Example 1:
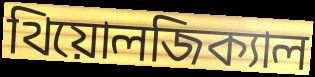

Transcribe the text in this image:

থিয়োলজিক্যাল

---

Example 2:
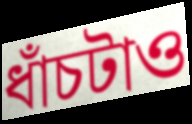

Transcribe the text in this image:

ধাঁচটাও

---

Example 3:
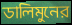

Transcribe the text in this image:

ডালিমুনের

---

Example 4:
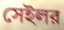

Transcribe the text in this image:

সেইলর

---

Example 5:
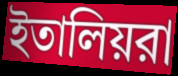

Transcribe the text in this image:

ইতালিয়রা